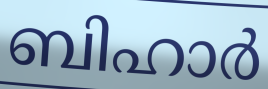
ബിഹാർ